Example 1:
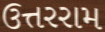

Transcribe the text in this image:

ઉત્તરરામ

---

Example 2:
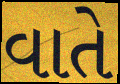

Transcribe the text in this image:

વાતે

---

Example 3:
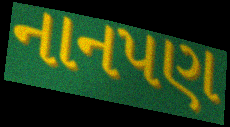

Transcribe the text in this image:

નાનપણ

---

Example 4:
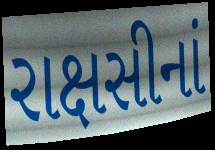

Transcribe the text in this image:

રાક્ષસીનાં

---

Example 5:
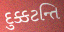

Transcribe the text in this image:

દુક્કટન્તિ